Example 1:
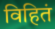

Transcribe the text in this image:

विहितं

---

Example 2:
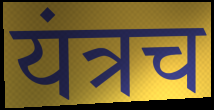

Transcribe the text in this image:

यंत्रच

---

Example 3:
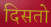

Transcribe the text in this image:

दिसतो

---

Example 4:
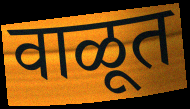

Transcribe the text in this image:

वाळूत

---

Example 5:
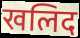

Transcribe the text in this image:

खलिद